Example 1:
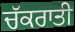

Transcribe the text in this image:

ਚੱਕਰਾਤੀ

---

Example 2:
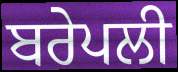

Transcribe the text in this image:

ਬਰੇਪਲੀ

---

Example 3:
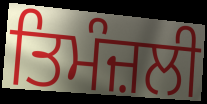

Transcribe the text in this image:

ਤਿਮੰਜ਼ਲੀ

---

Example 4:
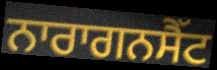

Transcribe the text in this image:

ਨਾਰਾਗਨਸੈੱਟ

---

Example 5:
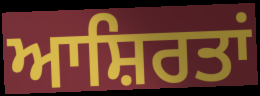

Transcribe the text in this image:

ਆਸ਼ਿਰਤਾਂ